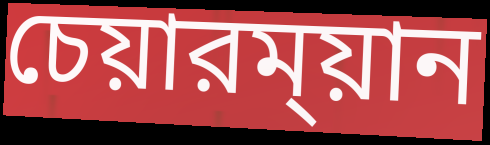
চেয়ারম্য়ান